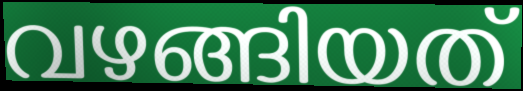
വഴങ്ങിയത്